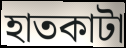
হাতকাটা